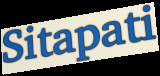
Sitapati